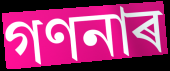
গণনাৰ